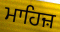
ਮਾਹਿਜ਼